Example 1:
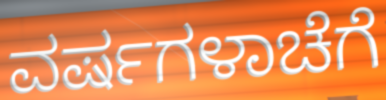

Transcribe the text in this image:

ವರ್ಷಗಳಾಚೆಗೆ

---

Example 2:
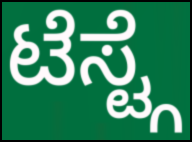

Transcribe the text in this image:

ಟೆಸ್ಟ್ಗೆ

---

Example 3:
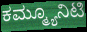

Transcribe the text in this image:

ಕಮ್ಮ್ಯೂನಿಟಿ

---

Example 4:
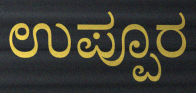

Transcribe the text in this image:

ಉಪ್ಪೂರ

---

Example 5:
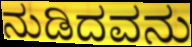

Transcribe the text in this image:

ನುಡಿದವನು